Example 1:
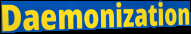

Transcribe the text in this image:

Daemonization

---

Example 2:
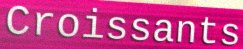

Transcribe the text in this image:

Croissants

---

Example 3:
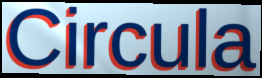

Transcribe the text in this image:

Circula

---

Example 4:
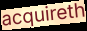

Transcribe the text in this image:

acquireth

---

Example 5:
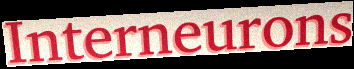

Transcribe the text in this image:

Interneurons